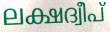
ലക്ഷദ്വീപ്